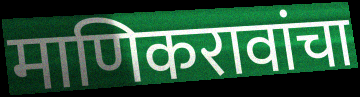
माणिकरावांचा